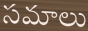
సమాలు